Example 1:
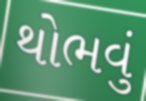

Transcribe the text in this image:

થોભવું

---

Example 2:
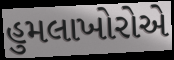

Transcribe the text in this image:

હુમલાખોરોએ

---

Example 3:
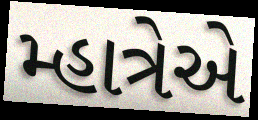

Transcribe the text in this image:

મ્હાત્રેએ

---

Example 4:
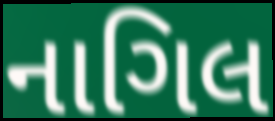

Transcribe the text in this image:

નાગિલ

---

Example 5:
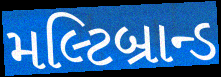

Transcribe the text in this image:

મલ્ટિબ્રાન્ડ